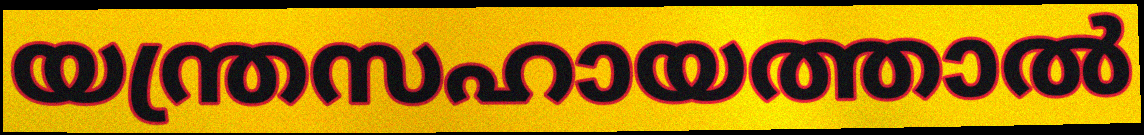
യന്ത്രസഹായത്താൽ